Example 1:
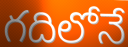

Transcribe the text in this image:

గదిలోనే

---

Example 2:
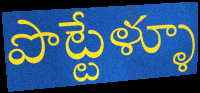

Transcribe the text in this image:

పొట్టేళ్ళూ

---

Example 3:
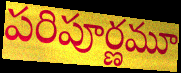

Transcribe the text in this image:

పరిపూర్ణమూ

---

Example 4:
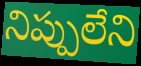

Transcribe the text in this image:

నిప్పులేని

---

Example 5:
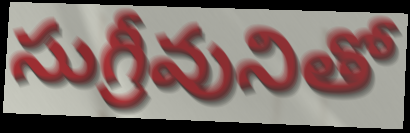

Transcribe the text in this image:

సుగ్రీవునితో